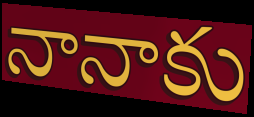
నానాకు